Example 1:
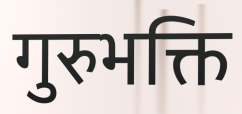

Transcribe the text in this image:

गुरुभक्ति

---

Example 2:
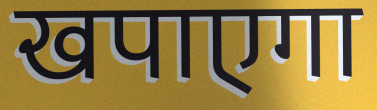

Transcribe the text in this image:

खपाएगा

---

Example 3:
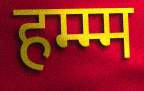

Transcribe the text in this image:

हम्म्म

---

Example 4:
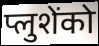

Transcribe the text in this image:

प्लुशेंको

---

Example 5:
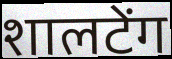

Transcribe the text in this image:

शालटेंग